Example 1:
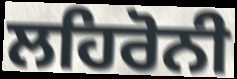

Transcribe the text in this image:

ਲਹਿਰੋਨੀ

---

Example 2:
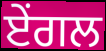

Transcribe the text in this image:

ਏਂਗਲ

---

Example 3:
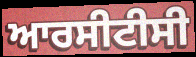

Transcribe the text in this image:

ਆਰਸੀਟੀਸੀ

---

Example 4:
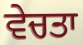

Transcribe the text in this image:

ਵੇਚਤਾ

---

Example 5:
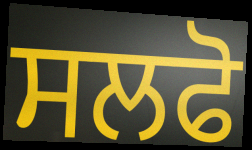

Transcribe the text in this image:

ਸਲਫੋ